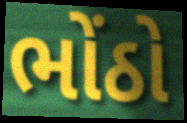
ભોંઠો